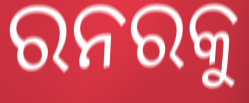
ରନରକୁ